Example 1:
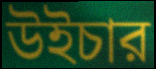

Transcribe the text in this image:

উইচার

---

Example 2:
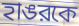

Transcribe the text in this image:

হাঙরকে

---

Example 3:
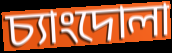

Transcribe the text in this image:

চ্যাংদোলা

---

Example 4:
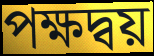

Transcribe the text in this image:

পক্ষদ্বয়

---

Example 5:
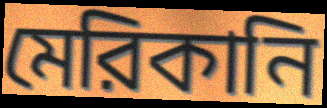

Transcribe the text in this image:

মেরিকানি